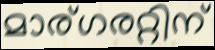
മാര്ഗരറ്റിന്